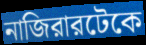
নাজিরারটেকে